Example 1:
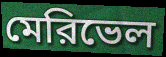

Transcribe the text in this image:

মেরিভেল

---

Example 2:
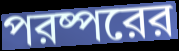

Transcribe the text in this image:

পরষ্পরের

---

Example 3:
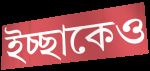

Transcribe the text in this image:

ইচ্ছাকেও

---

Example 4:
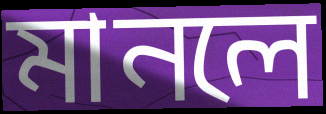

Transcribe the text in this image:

মানলে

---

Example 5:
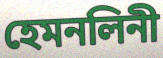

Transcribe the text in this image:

হেমনলিনী